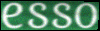
esso